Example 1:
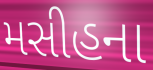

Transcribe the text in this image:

મસીહના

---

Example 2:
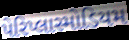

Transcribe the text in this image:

પેરિપ્લાસ્મોડિયમ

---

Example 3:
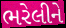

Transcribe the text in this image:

ભરેલીને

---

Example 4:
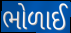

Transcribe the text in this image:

ભોળાઈ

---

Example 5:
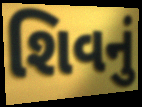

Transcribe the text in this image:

શિવનું